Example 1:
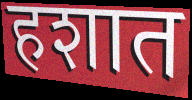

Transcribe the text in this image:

हशात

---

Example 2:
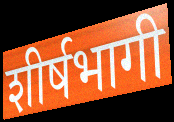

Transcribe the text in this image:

शीर्षभागी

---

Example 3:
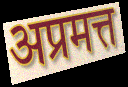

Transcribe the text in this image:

अप्रमत्त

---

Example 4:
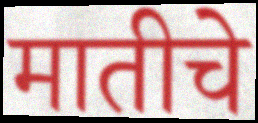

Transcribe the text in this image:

मातीचे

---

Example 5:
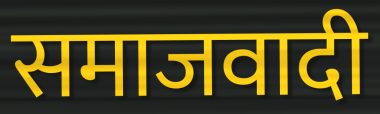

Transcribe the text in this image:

समाजवादी